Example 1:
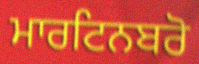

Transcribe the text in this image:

ਮਾਰਟਿਨਬਰੋ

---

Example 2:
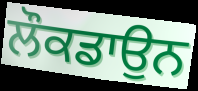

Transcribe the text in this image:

ਲੌਕਡਾਉਨ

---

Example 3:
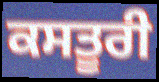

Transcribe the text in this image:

ਕਸਤੂਰੀ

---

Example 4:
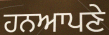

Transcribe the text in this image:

ਹਨਆਪਣੇ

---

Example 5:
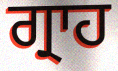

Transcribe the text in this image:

ਗ੍ਰਾਹ